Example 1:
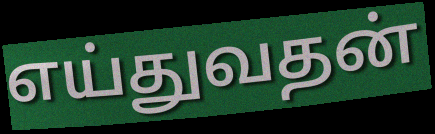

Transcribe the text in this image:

எய்துவதன்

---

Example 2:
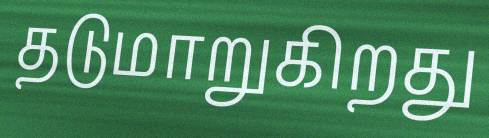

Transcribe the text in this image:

தடுமாறுகிறது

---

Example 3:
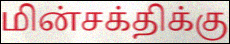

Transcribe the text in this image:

மின்சக்திக்கு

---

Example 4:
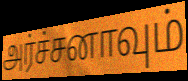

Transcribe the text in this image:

அர்ச்சனாவும்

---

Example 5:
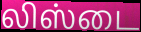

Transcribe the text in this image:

லிஸ்டை